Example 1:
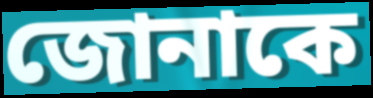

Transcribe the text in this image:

জোনাকে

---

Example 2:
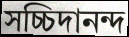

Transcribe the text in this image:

সচ্চিদানন্দ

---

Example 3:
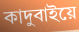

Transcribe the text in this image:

কাদুবাইয়ে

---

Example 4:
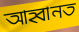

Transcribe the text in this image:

আহ্বানত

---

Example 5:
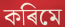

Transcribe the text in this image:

কৰিমে